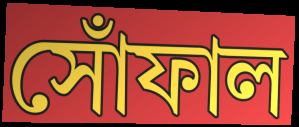
সোঁফাল